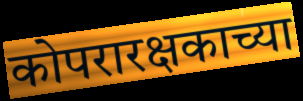
कोपरारक्षकाच्या